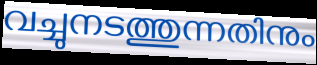
വച്ചുനടത്തുന്നതിനും